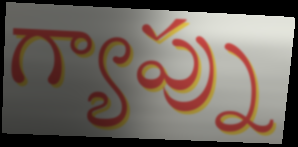
గ్యాప్ను